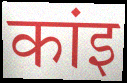
कांइ